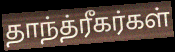
தாந்த்ரீகர்கள்